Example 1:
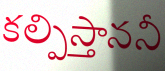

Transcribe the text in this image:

కల్పిస్తాననీ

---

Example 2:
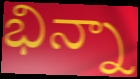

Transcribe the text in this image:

భిన్నా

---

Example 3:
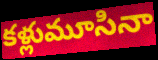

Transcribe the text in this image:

కళ్లుమూసినా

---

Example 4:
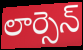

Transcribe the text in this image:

లార్సెన్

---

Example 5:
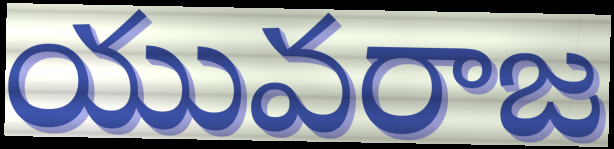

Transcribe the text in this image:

యువరాజ